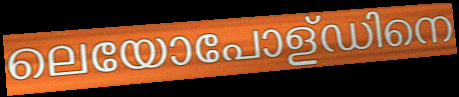
ലെയോപോള്ഡിനെ